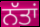
ਨੱਤਾਂ